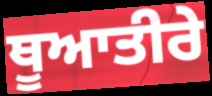
ਥੂਆਤੀਰੇ